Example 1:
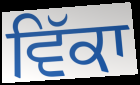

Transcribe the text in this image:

ਵਿੱਕਾ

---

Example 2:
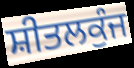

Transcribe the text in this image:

ਸ਼ੀਤਲਕੁੰਜ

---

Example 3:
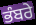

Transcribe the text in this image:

ਭੰਬਰੇ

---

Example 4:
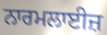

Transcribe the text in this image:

ਨਾਰਮਲਾਈਜ਼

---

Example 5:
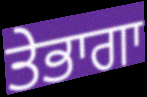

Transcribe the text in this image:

ਤੇਭਾਗਾ